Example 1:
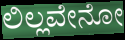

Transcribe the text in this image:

ಲಿಲ್ಲವೇನೋ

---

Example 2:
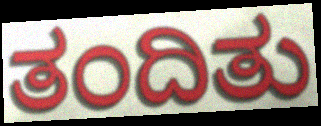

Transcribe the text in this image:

ತಂದಿತು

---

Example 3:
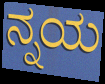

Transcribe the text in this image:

ನ್ನಯ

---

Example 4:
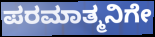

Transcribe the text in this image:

ಪರಮಾತ್ಮನಿಗೇ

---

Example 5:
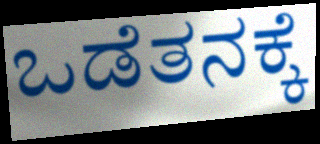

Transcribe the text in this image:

ಒಡೆತನಕ್ಕೆ